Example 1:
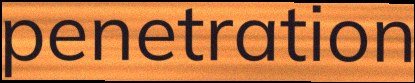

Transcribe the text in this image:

penetration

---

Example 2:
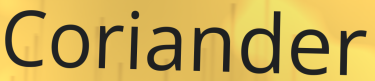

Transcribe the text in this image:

Coriander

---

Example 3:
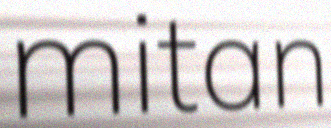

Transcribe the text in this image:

mitan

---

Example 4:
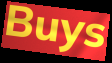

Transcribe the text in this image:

Buys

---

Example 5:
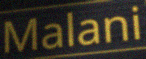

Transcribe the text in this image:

Malani